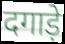
दगाड़े